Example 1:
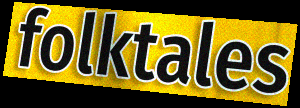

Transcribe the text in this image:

folktales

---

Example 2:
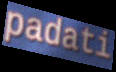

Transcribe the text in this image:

padati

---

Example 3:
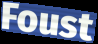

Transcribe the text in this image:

Foust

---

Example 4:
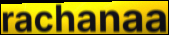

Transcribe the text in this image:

rachanaa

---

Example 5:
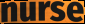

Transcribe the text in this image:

nurse